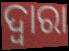
ଦ୍ବାରା